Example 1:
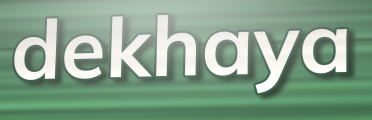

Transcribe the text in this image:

dekhaya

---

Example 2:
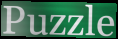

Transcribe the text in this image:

Puzzle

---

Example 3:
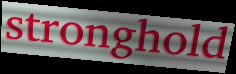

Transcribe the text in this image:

stronghold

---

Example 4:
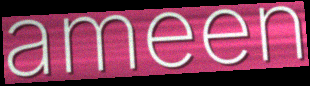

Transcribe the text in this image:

ameen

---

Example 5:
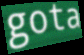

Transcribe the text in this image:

gota